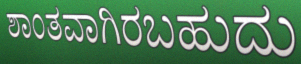
ಶಾಂತವಾಗಿರಬಹುದು